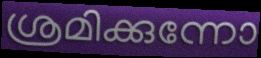
ശ്രമിക്കുന്നോ